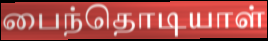
பைந்தொடியாள்